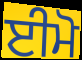
ਈਮੋ